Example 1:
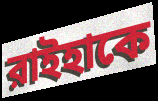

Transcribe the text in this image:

রাইহাকে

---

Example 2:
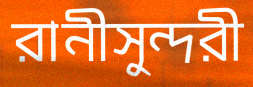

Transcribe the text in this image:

রানীসুন্দরী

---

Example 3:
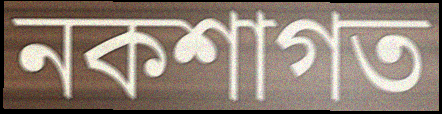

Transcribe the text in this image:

নকশাগত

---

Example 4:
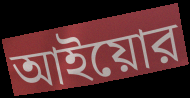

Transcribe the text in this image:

আইয়োর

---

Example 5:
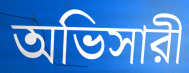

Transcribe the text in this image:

অভিসারী